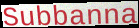
Subbanna